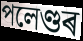
পলেণ্ডৰ